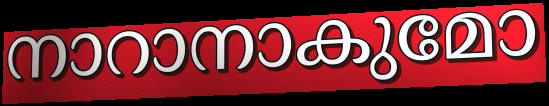
നാറാനാകുമോ